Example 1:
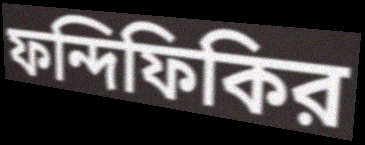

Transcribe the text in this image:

ফন্দিফিকির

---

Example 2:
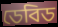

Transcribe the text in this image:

ডেবিড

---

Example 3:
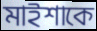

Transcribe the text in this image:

মাইশাকে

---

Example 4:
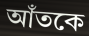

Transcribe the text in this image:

আঁতকে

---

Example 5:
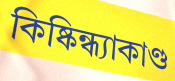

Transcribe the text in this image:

কিষ্কিন্ধ্যাকাণ্ড